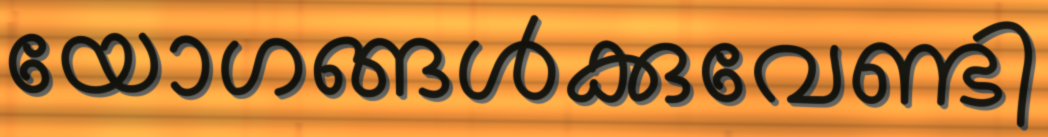
യോഗങ്ങൾക്കുവേണ്ടി